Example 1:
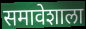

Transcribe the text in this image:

समावेशाला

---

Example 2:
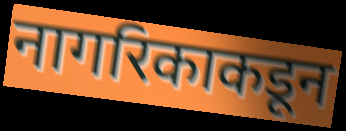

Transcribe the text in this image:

नागरिकाकडून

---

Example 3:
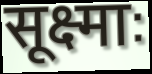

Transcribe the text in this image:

सूक्ष्माः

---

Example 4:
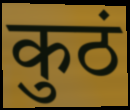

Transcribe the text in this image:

कुठं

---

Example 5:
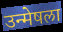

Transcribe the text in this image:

उन्मेषला